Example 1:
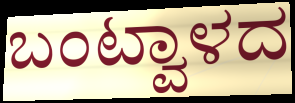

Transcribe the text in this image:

ಬಂಟ್ವಾಳದ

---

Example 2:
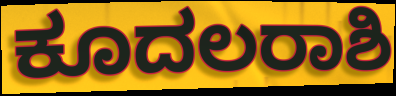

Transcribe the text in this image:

ಕೂದಲರಾಶಿ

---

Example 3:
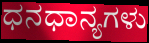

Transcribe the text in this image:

ಧನಧಾನ್ಯಗಳು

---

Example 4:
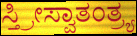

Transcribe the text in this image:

ಸ್ತ್ರೀಸ್ವಾತಂತ್ರ್ಯ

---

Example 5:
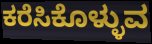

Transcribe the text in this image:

ಕರೆಸಿಕೊಳ್ಳುವ